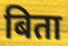
बिता